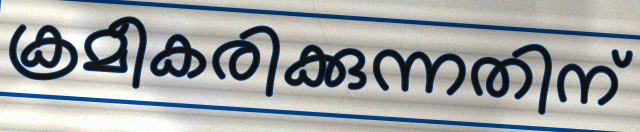
ക്രമീകരിക്കുന്നതിന്